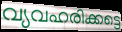
വ്യവഹരിക്കട്ടെ